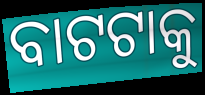
ବାଟଟାକୁ